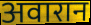
अवारान